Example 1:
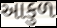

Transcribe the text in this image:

આકુળ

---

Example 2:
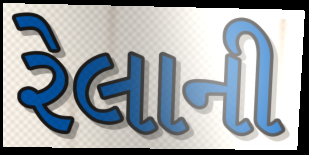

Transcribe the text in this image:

રેલાની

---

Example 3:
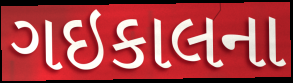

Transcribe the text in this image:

ગઇકાલના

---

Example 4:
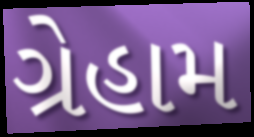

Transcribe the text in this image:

ગ્રેહામ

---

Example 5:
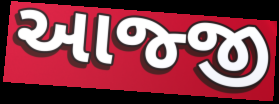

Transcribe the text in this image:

આજ્જી